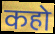
कहो